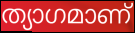
ത്യാഗമാണ്